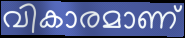
വികാരമാണ്